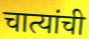
चात्यांची